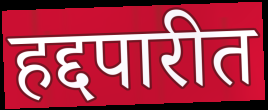
हद्दपारीत